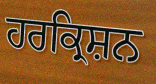
ਹਰਕ੍ਰਿਸ਼ਨ